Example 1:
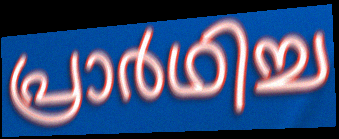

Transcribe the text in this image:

പ്രാർഥിച്ച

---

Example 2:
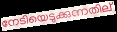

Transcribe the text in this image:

നേടിയെടുക്കുന്നതില്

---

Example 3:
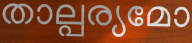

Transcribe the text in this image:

താല്പര്യമോ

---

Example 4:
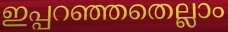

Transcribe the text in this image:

ഇപ്പറഞ്ഞതെല്ലാം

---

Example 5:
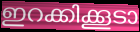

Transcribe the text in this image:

ഇറക്കിക്കൂടാ